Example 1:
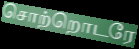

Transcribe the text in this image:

சொற்றொடரே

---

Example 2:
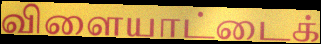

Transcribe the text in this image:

விளையாட்டைக்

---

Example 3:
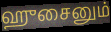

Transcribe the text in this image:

ஹுசைனும்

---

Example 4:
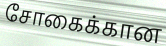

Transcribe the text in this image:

சோகைக்கான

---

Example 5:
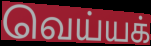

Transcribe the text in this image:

வெய்யக்